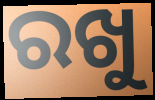
ରଖୁ